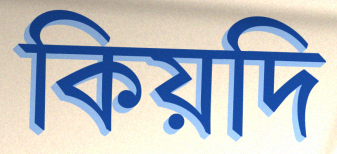
কিয়দি